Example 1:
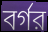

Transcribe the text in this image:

বর্গর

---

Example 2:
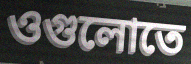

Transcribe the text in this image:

ওগুলোতে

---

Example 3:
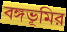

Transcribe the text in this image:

বঙ্গভূমির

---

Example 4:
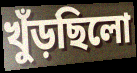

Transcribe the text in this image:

খুঁড়ছিলো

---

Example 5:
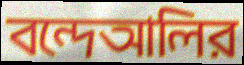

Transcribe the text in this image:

বন্দেআলির